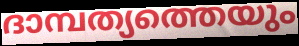
ദാമ്പത്യത്തെയും